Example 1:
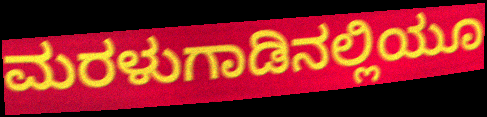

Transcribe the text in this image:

ಮರಳುಗಾಡಿನಲ್ಲಿಯೂ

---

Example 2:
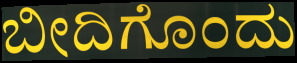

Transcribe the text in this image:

ಬೀದಿಗೊಂದು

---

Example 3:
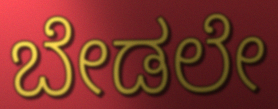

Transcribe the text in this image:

ಬೇಡಲೇ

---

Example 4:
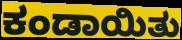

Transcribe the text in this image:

ಕಂಡಾಯಿತು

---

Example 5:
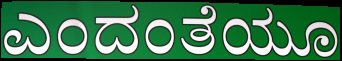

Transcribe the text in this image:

ಎಂದಂತೆಯೂ